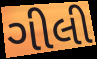
ગીલી